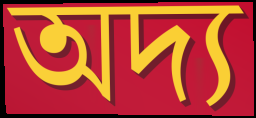
অদ্য